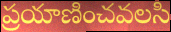
ప్రయాణించవలసి